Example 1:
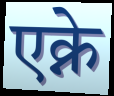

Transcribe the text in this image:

एक्ने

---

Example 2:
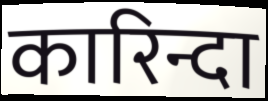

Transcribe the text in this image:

कारिन्दा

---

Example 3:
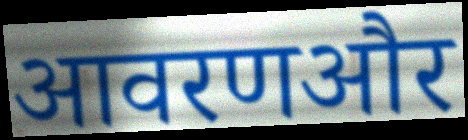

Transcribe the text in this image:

आवरणऔर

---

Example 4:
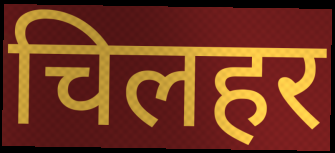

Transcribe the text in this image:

चिलहर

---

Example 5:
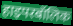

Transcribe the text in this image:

हाइपरबॉलिक